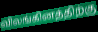
விலங்கினத்திற்கு